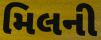
મિલની